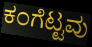
ಕಂಗೆಟ್ಟವು